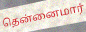
தென்னைமார்